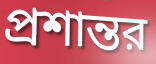
প্রশান্তর